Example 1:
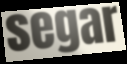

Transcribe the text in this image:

segar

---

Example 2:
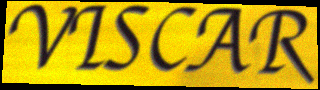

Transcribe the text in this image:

VISCAR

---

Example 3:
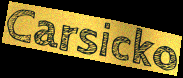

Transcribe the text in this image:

Carsicko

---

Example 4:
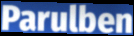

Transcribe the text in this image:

Parulben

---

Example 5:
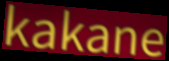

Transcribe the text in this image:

kakane